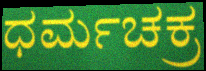
ಧರ್ಮಚಕ್ರ